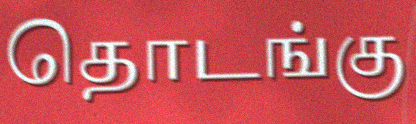
தொடங்கு